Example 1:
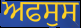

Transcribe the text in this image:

ਅਫਸੁਸ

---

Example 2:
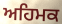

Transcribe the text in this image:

ਅਹਿਮਕ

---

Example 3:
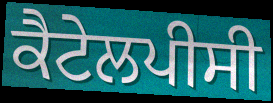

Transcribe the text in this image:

ਕੈਟੇਲਪੀਸੀ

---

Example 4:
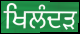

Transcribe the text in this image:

ਖਿਲੰਦੜ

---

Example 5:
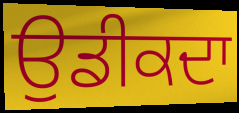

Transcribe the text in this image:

ਉਡੀਕਦਾ